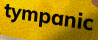
tympanic